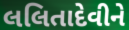
લલિતાદેવીને